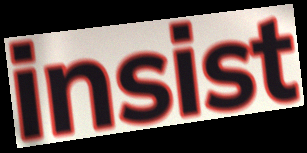
insist